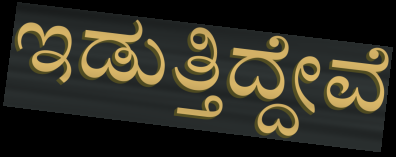
ಇಡುತ್ತಿದ್ದೇವೆ